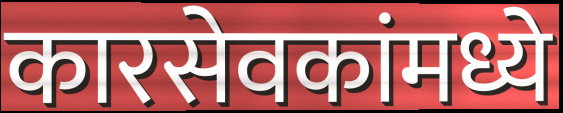
कारसेवकांमध्ये